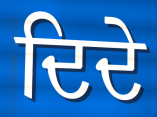
ਦਿਦੇ